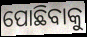
ପୋଛିବାକୁ